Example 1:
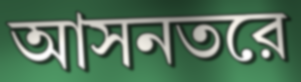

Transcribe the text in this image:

আসনতরে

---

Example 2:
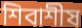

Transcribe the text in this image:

শিবাশীষ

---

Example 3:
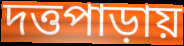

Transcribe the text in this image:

দত্তপাড়ায়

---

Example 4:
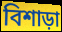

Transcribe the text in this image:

বিশাড়া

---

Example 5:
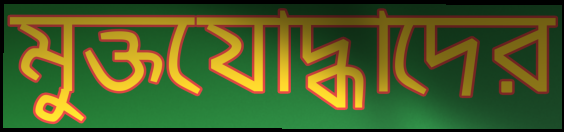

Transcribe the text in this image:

মুক্তযোদ্ধাদের